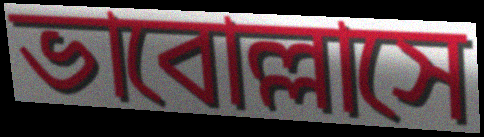
ভাবোল্লাসে